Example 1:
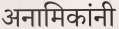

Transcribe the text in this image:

अनामिकांनी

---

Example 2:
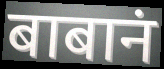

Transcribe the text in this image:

बाबानं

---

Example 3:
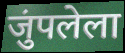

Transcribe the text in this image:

जुंपलेला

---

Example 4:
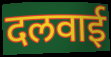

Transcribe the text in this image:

दलवाई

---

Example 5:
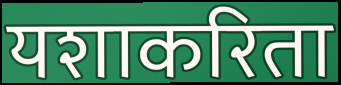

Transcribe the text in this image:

यशाकरिता